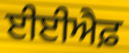
ਈਈਐਫ਼